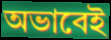
অভাবেই